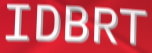
IDBRT